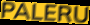
PALERU